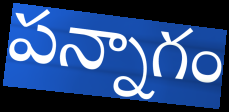
పన్నాగం